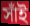
সাঁই